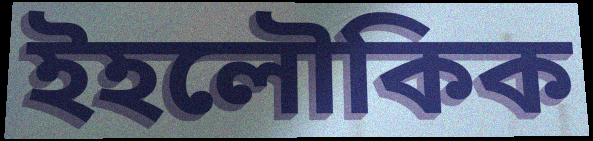
ইহলৌকিক